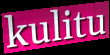
kulitu